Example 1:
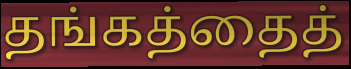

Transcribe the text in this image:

தங்கத்தைத்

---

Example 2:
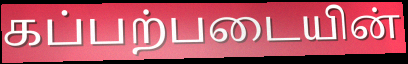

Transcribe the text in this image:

கப்பற்படையின்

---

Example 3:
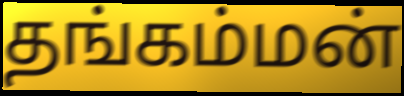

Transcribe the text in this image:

தங்கம்மன்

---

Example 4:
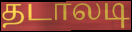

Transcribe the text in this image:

தடாலடி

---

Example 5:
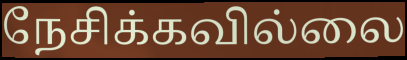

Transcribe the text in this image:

நேசிக்கவில்லை